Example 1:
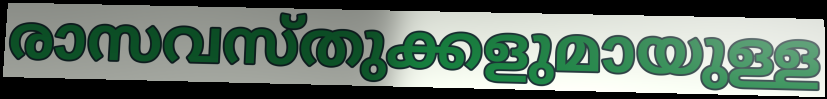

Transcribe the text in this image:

രാസവസ്തുക്കളുമായുള്ള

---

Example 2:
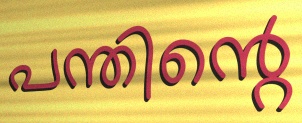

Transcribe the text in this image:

പന്തിന്റെ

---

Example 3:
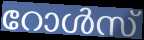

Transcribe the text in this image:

റോൾസ്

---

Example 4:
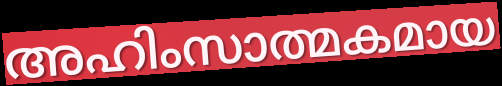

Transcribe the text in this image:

അഹിംസാത്മകമായ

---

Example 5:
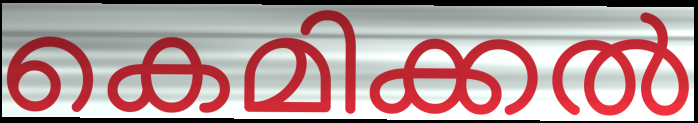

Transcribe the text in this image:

കെമിക്കൽ